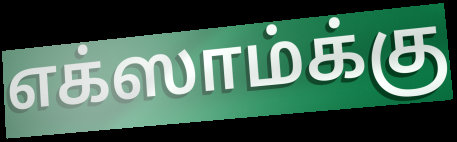
எக்ஸாம்க்கு